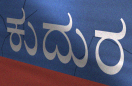
ಕುದುರ